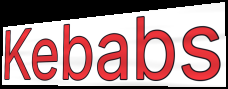
Kebabs